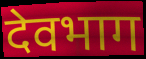
देवभाग